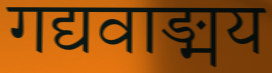
गद्यवाङ्मय